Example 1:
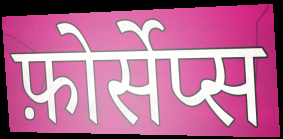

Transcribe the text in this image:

फ़ोर्सेप्स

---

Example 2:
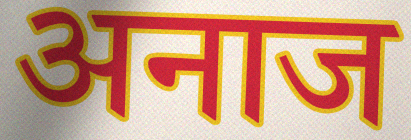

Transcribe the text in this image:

अनाज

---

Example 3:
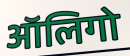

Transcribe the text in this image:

ऑलिगो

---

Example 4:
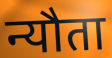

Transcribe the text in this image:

न्यौता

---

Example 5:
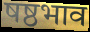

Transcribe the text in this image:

षष्ठभाव